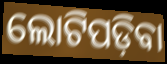
ଲୋଟିପଡ଼ିବା